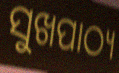
ସୁଖପାଠ୍ୟ